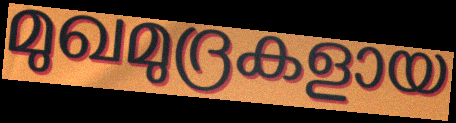
മുഖമുദ്രകളായ